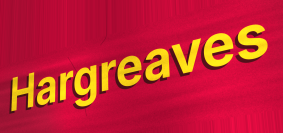
Hargreaves